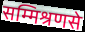
सम्मिश्रणसे